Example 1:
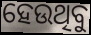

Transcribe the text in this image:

ହେଉଥିବୁ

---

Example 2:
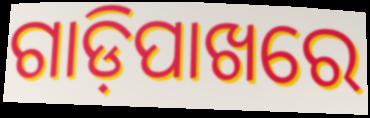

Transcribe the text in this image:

ଗାଡ଼ିପାଖରେ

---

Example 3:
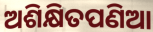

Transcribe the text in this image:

ଅଶିକ୍ଷିତପଣିଆ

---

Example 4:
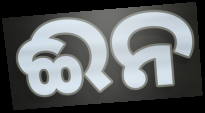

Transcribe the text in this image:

ଈନ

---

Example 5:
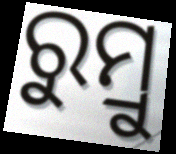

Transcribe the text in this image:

ରୁମ୍ରୁ